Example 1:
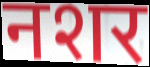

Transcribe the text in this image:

नशर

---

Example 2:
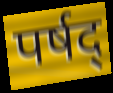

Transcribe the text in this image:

पर्षद्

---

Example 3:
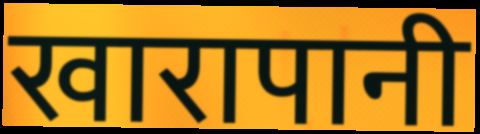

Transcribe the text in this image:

खारापानी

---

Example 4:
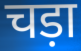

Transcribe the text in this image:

चड़ा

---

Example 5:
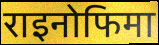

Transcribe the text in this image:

राइनोफिमा